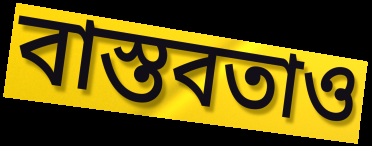
বাস্তবতাও